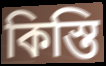
কিস্তি